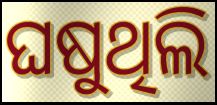
ଘଷୁଥିଲି